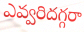
ఎవ్వరిదగ్గరా